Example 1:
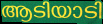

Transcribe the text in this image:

ആടിയാടി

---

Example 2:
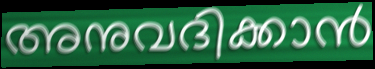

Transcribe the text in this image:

അനുവദിക്കാൻ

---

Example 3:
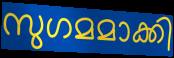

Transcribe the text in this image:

സുഗമമാക്കി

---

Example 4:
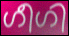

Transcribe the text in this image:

ഗീഗി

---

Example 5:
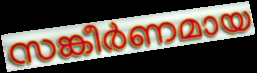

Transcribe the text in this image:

സങ്കീർണമായ